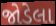
જોડેલા